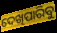
ଦେଖିପାରିବୁ